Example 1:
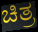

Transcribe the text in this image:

ಚಿತ್ರ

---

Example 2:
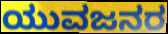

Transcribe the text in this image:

ಯುವಜನರ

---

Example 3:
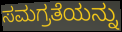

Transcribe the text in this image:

ಸಮಗ್ರತೆಯನ್ನು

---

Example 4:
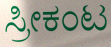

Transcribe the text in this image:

ಸ್ರೀಕಂಟ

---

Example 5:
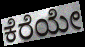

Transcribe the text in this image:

ಕೆರೆಯೇ